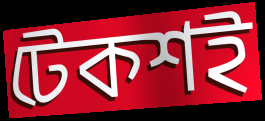
টেকশই